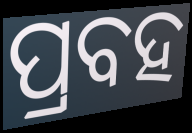
ପ୍ରବହ